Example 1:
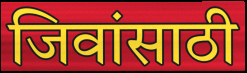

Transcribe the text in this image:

जिवांसाठी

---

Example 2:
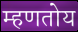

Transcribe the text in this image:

म्हणतोय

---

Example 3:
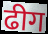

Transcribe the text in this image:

ढीग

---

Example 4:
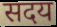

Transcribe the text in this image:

सदय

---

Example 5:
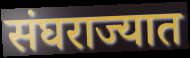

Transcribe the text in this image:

संघराज्यात